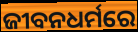
ଜୀବନଧର୍ମରେ